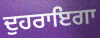
ਦੁਹਰਾਇਗਾ